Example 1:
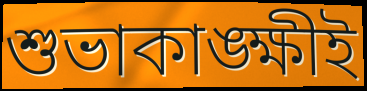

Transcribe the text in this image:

শুভাকাঙ্ক্ষীই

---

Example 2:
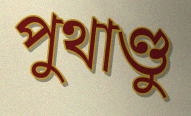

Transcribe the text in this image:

পুথাণ্ডু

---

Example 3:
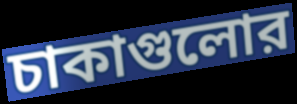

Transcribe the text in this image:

চাকাগুলোর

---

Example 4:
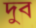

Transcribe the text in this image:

দুব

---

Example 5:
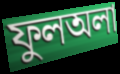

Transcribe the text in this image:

ফুলঅলা